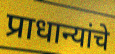
प्राधान्यांचे